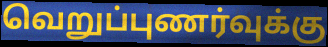
வெறுப்புணர்வுக்கு